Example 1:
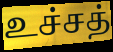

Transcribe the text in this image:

உச்சத்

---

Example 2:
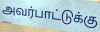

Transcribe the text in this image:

அவர்பாட்டுக்கு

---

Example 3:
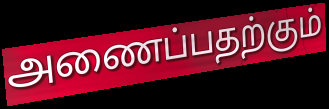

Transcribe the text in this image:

அணைப்பதற்கும்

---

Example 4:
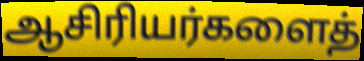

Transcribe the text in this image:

ஆசிரியர்களைத்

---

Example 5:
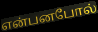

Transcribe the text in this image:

என்பனபோல்